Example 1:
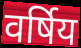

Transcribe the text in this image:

वर्षिय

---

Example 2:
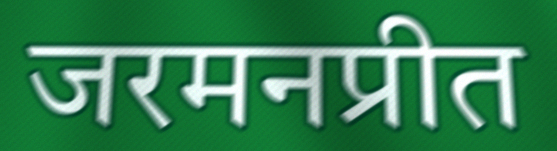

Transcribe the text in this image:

जरमनप्रीत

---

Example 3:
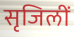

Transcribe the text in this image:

सृजिलीं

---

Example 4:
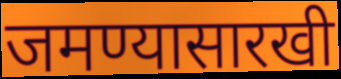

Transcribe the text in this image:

जमण्यासारखी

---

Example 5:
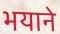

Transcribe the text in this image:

भयाने